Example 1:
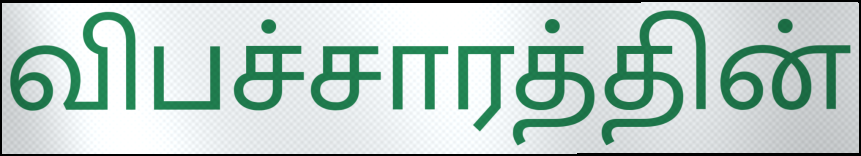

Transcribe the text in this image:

விபச்சாரத்தின்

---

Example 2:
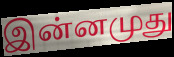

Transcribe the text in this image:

இன்னமுது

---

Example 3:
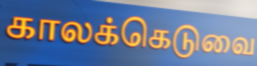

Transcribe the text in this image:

காலக்கெடுவை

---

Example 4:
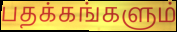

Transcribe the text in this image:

பதக்கங்களும்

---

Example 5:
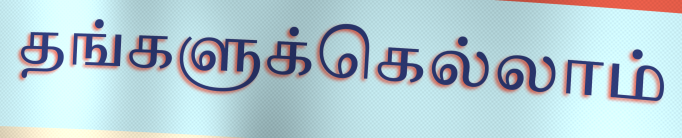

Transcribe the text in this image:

தங்களுக்கெல்லாம்